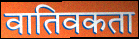
वातिवकता